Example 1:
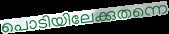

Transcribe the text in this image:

പൊടിയിലേക്കുതന്നെ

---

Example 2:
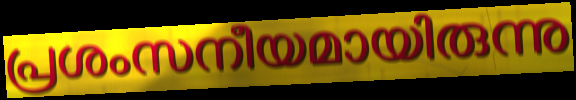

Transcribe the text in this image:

പ്രശംസനീയമായിരുന്നു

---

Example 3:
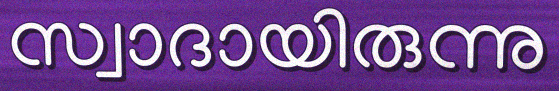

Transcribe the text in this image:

സ്വാദായിരുന്നു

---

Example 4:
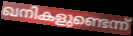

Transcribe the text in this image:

ഖനികളുണ്ടെന്ന്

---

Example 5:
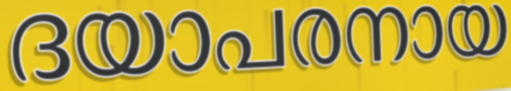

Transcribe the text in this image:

ദയാപരനായ